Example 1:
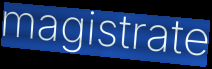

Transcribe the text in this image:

magistrate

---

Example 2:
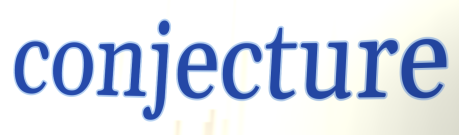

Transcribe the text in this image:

conjecture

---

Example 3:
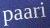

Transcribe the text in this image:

paari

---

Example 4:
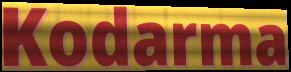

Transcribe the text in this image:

Kodarma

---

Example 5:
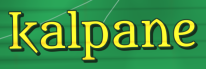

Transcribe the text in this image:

kalpane